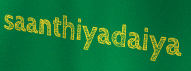
saanthiyadaiya